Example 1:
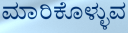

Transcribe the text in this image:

ಮಾರಿಕೊಳ್ಳುವ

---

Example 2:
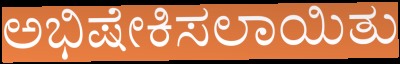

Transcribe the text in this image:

ಅಭಿಷೇಕಿಸಲಾಯಿತು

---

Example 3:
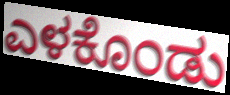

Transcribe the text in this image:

ಎಳಕೊಂಡು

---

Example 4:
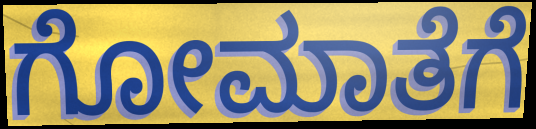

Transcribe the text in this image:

ಗೋಮಾತೆಗೆ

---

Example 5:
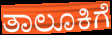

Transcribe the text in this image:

ತಾಲೂಕಿಗೆ